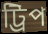
ট্রিপ